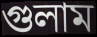
গুলাম